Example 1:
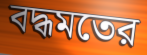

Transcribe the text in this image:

বদ্ধমতের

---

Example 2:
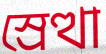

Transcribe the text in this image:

স্রেত্থা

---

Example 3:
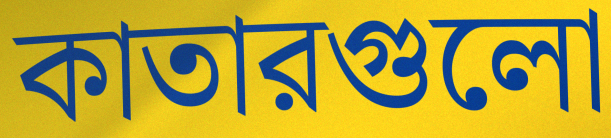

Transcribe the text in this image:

কাতারগুলো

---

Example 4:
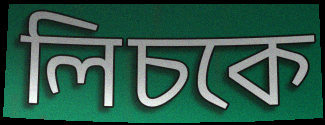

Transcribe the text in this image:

লিচকে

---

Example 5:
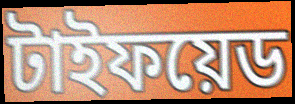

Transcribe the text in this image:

টাইফয়েড